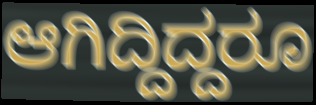
ಆಗಿದ್ದಿದ್ದರೂ